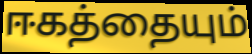
ஈகத்தையும்